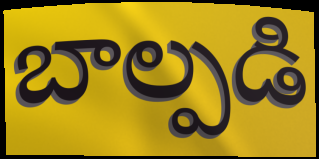
బాల్పడి